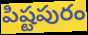
పిష్టపురం